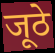
जूठे